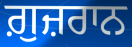
ਗ਼ੁਜ਼ਰਾਨ